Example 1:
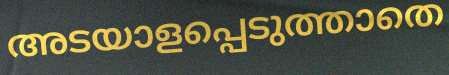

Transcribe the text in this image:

അടയാളപ്പെടുത്താതെ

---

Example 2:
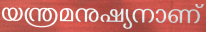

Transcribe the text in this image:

യന്ത്രമനുഷ്യനാണ്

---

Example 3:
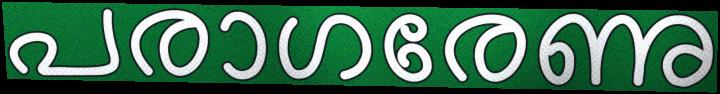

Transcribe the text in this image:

പരാഗരേണു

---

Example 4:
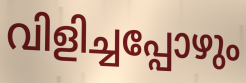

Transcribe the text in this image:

വിളിച്ചപ്പോഴും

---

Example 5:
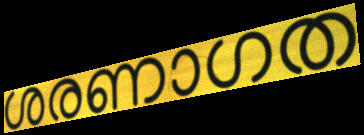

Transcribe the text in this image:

ശരണാഗത